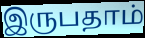
இருபதாம்